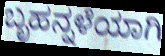
ಬೃಹನ್ನಳೆಯಾಗಿ